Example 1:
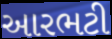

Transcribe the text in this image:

આરભટી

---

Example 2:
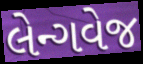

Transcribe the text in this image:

લેન્ગવેજ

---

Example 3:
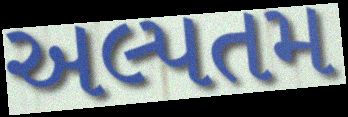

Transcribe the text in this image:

અલ્પતમ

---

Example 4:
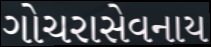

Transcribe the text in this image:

ગોચરાસેવનાય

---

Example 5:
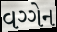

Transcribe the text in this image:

વગ્ગેન